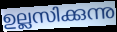
ഉല്ലസിക്കുന്നു